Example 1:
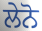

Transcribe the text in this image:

ਲੇਨੋ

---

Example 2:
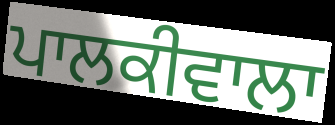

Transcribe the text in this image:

ਪਾਲਕੀਵਾਲਾ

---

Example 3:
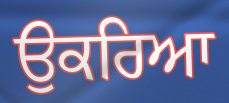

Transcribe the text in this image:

ਉਕਰਿਆ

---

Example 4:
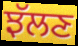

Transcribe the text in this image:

ਝੱਲਣ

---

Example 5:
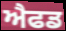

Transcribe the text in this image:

ਐਫਡ